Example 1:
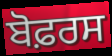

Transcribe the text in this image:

ਬੋਫ਼ਰਸ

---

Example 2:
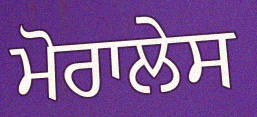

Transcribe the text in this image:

ਮੋਰਾਲੇਸ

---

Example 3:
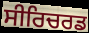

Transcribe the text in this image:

ਸੀਰਿਚਰਡ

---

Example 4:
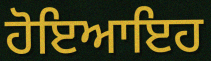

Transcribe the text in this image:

ਹੋਇਆਇਹ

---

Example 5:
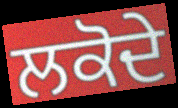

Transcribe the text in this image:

ਲਕੋਦੇ